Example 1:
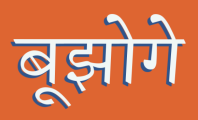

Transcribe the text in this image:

बूझोगे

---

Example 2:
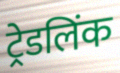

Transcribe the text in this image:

ट्रेडलिंक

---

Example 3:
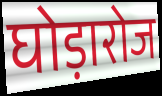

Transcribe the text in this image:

घोड़ारोज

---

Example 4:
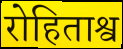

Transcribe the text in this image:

रोहिताश्व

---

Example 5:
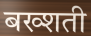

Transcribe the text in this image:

बख्शती